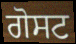
ਗੋਸਟ